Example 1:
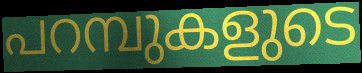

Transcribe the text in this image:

പറമ്പുകളുടെ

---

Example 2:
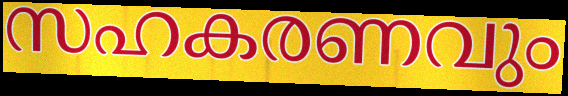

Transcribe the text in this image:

സഹകരണവും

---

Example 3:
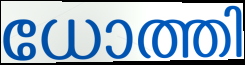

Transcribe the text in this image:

ധോത്തി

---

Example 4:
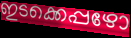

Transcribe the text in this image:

ഇടക്കെപ്പഴോ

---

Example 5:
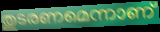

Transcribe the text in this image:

തുടരണമെന്നാണ്